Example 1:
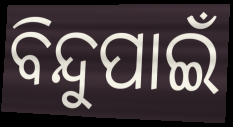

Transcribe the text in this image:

ବିନ୍ଦୁପାଇଁ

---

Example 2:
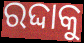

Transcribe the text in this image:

ରଦ୍ଦାକୁ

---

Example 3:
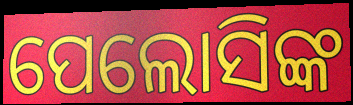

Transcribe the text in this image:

ପେଲୋସିଙ୍କ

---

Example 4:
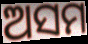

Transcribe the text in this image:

ଅସମ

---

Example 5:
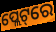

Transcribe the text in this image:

ପ୍ଲେଟ୍‌ରେ